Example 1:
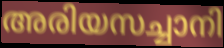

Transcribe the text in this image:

അരിയസച്ചാനി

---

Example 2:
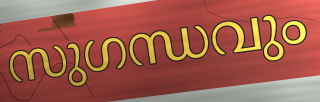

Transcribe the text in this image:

സുഗന്ധവും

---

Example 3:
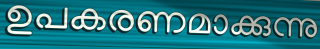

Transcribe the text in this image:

ഉപകരണമാക്കുന്നു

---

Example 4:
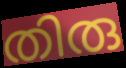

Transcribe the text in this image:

തിരു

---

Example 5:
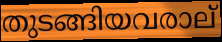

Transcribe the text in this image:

തുടങ്ങിയവരാല്